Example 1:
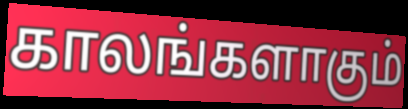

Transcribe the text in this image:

காலங்களாகும்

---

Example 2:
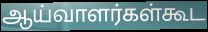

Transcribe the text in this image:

ஆய்வாளர்கள்கூட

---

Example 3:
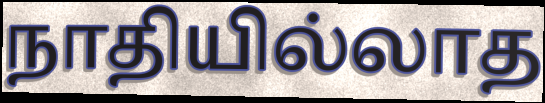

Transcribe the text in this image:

நாதியில்லாத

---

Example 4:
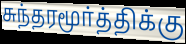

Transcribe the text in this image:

சுந்தரமூர்த்திக்கு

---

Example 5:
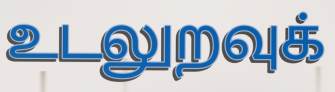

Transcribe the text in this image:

உடலுறவுக்